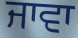
ਜਾਵਾ